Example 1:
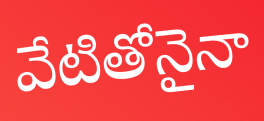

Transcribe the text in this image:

వేటితోనైనా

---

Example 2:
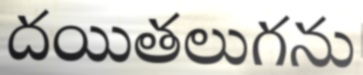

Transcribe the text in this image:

దయితలుగను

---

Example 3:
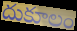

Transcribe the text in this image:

దుకూలం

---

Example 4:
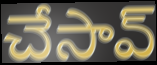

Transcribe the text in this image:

చేసావ్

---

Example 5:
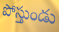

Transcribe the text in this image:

పోస్తుండు